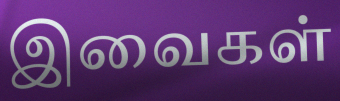
இவைகள்